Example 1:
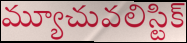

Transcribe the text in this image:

మ్యూచువలిస్టిక్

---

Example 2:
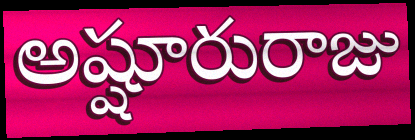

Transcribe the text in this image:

అష్షూరురాజు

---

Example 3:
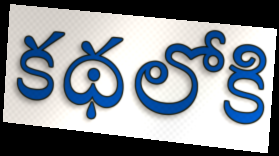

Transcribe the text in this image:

కథలోకి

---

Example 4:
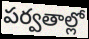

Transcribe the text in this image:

పర్వతాల్లో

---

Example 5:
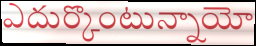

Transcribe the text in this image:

ఎదుర్కొంటున్నాయో